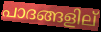
പാദങ്ങളില്